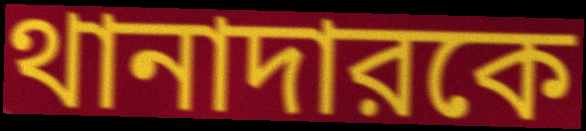
থানাদারকে